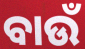
ବାଉଁ